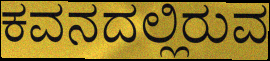
ಕವನದಲ್ಲಿರುವ